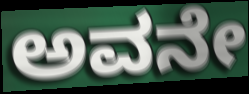
ಅವನೇ